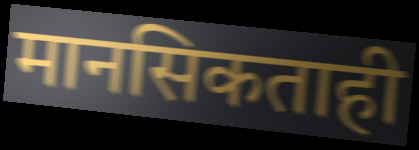
मानसिकताही